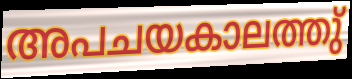
അപചയകാലത്തു്